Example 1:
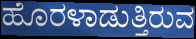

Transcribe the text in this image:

ಹೊರಳಾಡುತ್ತಿರುವ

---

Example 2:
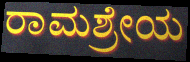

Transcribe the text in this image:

ರಾಮಶ್ರೇಯ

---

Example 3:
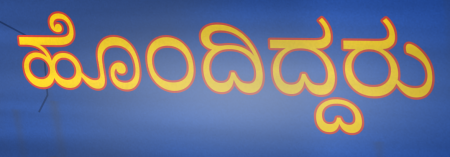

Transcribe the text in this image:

ಹೊಂದಿದ್ದರು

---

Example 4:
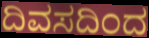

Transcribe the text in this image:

ದಿವಸದಿಂದ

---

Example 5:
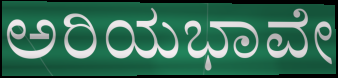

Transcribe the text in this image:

ಅರಿಯಭಾವೇ